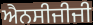
ਐਨਸੀਜੀਜੀ